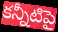
కన్నీటిపై